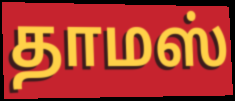
தாமஸ்